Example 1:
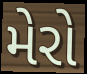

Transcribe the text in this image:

મેરો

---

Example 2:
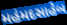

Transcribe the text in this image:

મહંમદસાહેબ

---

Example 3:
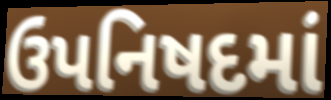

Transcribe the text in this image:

ઉપનિષદમાં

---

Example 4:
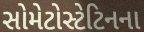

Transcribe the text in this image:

સોમેટોસ્ટેટિનના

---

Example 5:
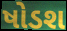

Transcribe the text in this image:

ષોડશ